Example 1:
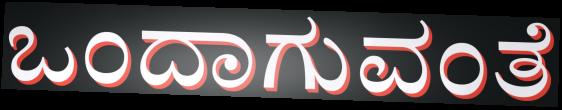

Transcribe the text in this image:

ಒಂದಾಗುವಂತೆ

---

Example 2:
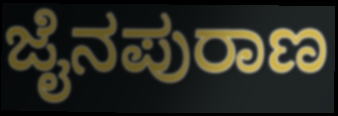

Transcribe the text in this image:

ಜೈನಪುರಾಣ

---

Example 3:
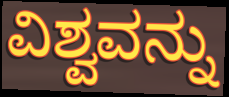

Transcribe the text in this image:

ವಿಶ್ವವನ್ನು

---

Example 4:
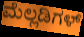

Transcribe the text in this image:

ಮೆಲ್ಲಡಿಗಳ್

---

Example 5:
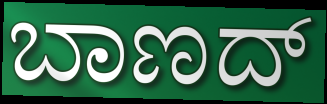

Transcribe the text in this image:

ಬಾಣದ್